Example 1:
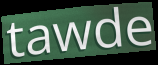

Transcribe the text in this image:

tawde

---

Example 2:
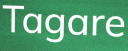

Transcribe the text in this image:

Tagare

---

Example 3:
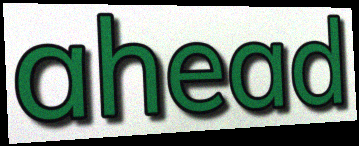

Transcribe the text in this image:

ahead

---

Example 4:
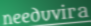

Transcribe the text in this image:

needuvira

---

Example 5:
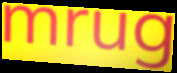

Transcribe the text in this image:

mrug